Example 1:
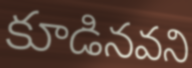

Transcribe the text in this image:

కూడినవని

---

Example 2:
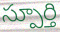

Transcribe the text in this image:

స్పూర్తి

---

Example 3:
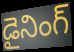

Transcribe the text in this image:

డైనింగ్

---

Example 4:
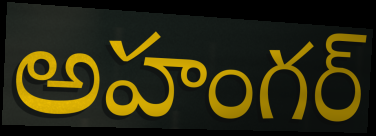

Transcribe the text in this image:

అహంగర్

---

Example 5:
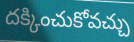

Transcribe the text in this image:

దక్కించుకోవచ్చు